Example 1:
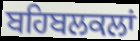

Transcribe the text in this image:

ਬਹਿਬਲਕਲਾਂ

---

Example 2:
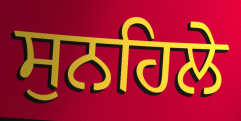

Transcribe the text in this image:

ਸੁਨਹਿਲੇ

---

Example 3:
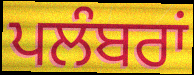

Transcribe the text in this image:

ਪਲੰਬਰਾਂ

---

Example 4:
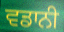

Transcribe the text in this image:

ਵਡਾਨੀ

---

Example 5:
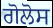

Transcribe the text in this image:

ਗੋਲੋਸ